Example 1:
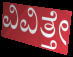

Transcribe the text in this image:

ವಿವಿತ್ತೇ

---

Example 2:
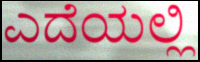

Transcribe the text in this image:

ಎದೆಯಲ್ಲಿ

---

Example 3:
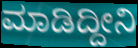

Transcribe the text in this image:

ಮಾಡಿದ್ದೀನಿ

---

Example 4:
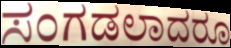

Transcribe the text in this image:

ಸಂಗಡಲಾದರೂ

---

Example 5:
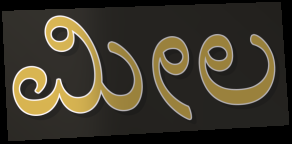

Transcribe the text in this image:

ಮೀಲ